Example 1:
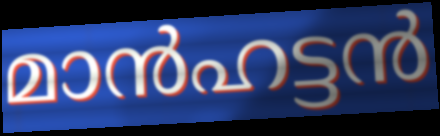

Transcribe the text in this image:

മാൻഹട്ടൻ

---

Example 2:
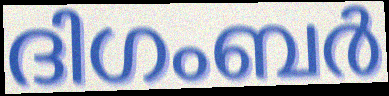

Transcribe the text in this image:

ദിഗംബർ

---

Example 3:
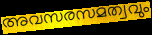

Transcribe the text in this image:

അവസരസമത്വവും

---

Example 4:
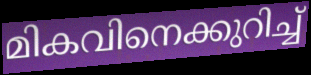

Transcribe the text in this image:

മികവിനെക്കുറിച്ച്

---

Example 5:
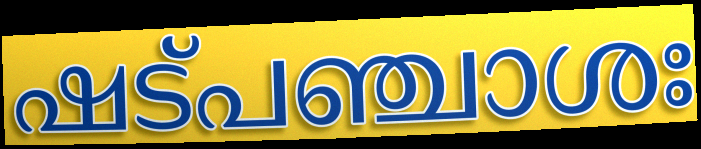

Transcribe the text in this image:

ഷട്പഞ്ചാശഃ